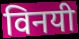
विनयी